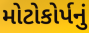
મોટોકોર્પનું